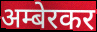
अम्बेरकर